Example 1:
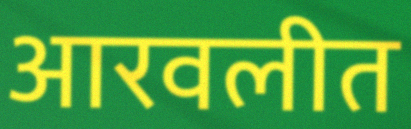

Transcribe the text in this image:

आरवलीत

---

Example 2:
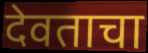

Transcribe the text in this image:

देवताचा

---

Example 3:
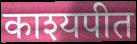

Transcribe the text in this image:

काश्यपीत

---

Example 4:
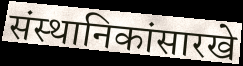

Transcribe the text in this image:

संस्थानिकांसारखे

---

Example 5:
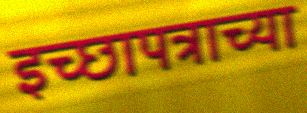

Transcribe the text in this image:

इच्छापत्राच्या